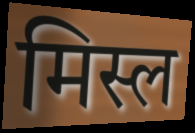
मिस्ल